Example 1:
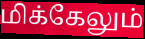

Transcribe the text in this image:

மிக்கேலும்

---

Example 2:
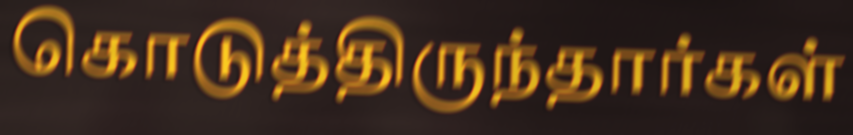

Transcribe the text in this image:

கொடுத்திருந்தார்கள்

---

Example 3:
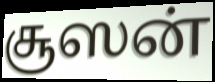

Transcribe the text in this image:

சூஸன்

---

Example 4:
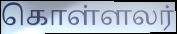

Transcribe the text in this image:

கொள்ளலர்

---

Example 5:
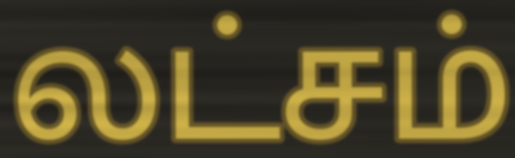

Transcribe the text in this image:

லட்சம்